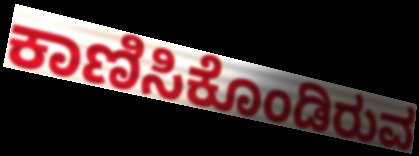
ಕಾಣಿಸಿಕೊಂಡಿರುವ